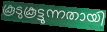
കൂടുകൂട്ടുന്നതായി